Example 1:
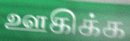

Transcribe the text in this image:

ஊகிக்க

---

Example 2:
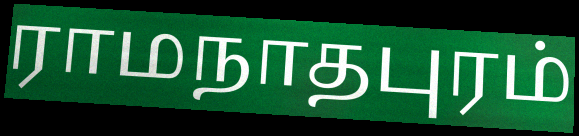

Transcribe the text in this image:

ராமநாதபுரம்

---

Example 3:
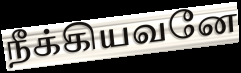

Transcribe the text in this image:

நீக்கியவனே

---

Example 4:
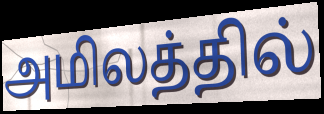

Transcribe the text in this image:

அமிலத்தில்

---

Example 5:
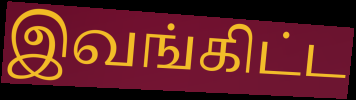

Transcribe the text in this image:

இவங்கிட்ட